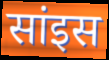
सांइस